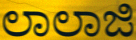
ಲಾಲಾಜಿ